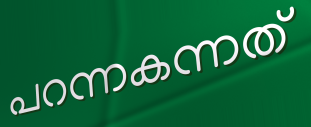
പറന്നകന്നത്